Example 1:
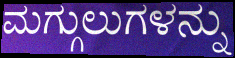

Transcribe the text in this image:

ಮಗ್ಗುಲುಗಳನ್ನು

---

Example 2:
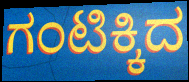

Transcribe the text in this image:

ಗಂಟಿಕ್ಕಿದ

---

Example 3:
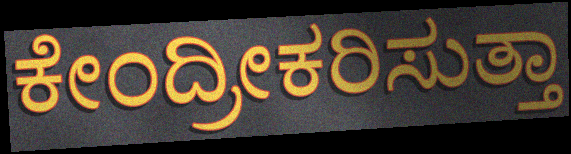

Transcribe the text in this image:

ಕೇಂದ್ರೀಕರಿಸುತ್ತಾ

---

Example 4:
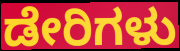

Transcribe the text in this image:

ಡೇರಿಗಳು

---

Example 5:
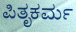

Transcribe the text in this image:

ಪಿತೃಕರ್ಮ